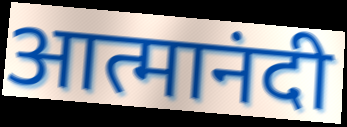
आत्मानंदी